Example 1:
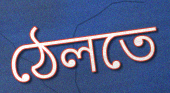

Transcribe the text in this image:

ঠেলতে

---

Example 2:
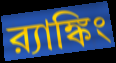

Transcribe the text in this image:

র‍্যাঙ্কিং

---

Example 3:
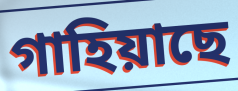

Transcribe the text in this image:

গাহিয়াছে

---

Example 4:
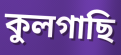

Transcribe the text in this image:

কুলগাছি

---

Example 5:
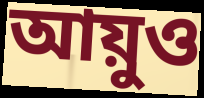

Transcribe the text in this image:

আয়ুও